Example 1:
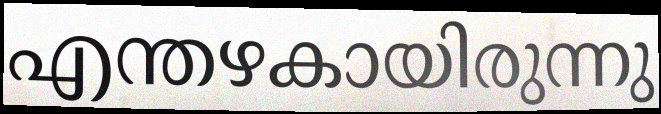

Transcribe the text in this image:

എന്തഴകായിരുന്നു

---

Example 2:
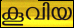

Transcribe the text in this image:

കൂവിയ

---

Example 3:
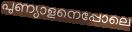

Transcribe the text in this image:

പുണ്യാളനെപ്പോലെ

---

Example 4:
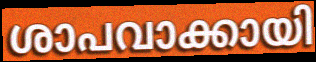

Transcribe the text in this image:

ശാപവാക്കായി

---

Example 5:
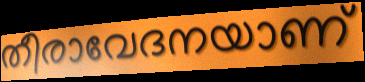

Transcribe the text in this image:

തീരാവേദനയാണ്